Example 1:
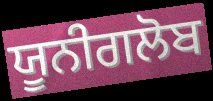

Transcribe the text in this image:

ਯੂਨੀਗਲੋਬ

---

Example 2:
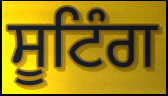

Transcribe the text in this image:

ਸੂਟਿੰਗ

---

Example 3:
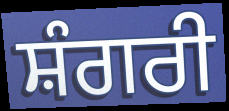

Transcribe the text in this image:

ਸ਼ੰਗਰੀ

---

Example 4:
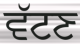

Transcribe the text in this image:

ਵੱਟਣ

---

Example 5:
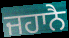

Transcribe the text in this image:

ਜਹਾਨੈ